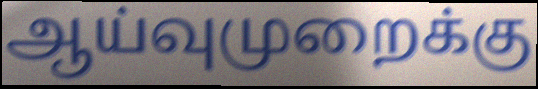
ஆய்வுமுறைக்கு